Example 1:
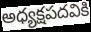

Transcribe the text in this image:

అధ్యక్షపదవికి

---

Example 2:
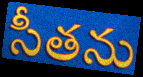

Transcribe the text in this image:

సీతను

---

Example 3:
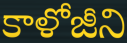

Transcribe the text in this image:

కాళోజీని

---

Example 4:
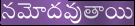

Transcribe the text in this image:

నమోదవుతాయి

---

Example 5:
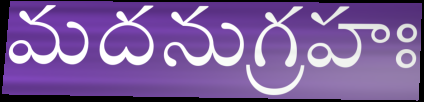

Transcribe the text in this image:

మదనుగ్రహః